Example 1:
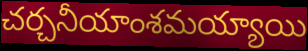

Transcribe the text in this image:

చర్చనీయాంశమయ్యాయి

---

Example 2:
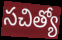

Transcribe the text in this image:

సచిత్యో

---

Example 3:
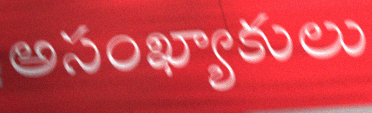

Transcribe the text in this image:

అసంఖ్యాకులు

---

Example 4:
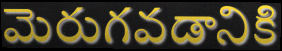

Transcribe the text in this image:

మెరుగవడానికి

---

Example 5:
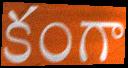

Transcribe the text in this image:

కంగా